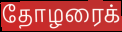
தோழரைக்